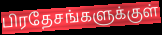
பிரதேசங்களுக்குள்